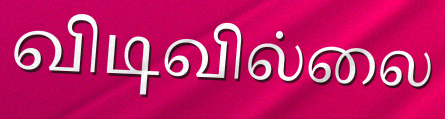
விடிவில்லை